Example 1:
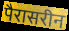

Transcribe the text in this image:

पैरासरीन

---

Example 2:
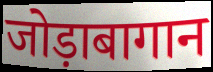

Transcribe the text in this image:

जोड़ाबागान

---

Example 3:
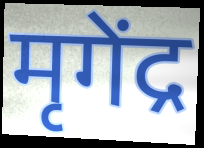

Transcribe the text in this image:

मृगेंद्र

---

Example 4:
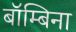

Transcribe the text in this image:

बॉम्बिना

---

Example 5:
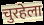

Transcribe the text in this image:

चुरहेला